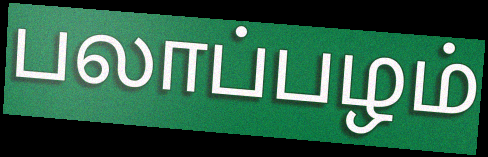
பலாப்பழம்